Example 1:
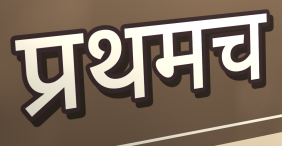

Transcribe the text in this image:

प्रथमच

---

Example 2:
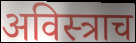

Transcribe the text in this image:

अविस्त्राच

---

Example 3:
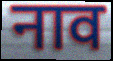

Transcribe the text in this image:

नाव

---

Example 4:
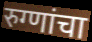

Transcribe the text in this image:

रुग्णांचा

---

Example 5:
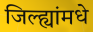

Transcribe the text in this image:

जिल्ह्यांमधे